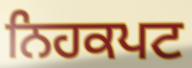
ਨਿਹਕਪਟ